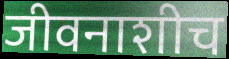
जीवनाशीच